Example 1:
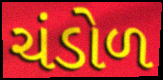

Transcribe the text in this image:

ચંડોળ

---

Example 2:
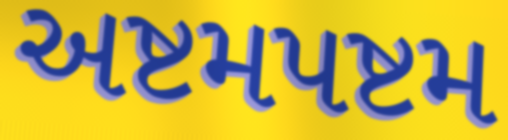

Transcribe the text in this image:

અષ્ટમપષ્ટમ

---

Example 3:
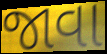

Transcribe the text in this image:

જાવા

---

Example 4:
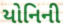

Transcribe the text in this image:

યોનિની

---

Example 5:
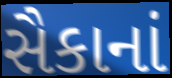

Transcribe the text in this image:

સૈકાનાં